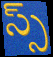
స్స్